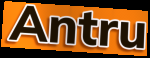
Antru